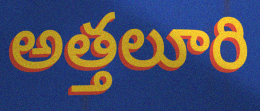
అత్తలూరి